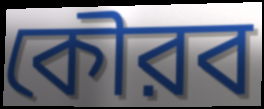
কৌরব